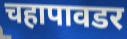
चहापावडर